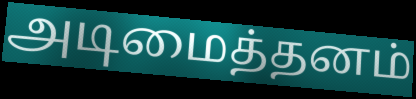
அடிமைத்தனம்